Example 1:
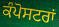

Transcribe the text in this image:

ਕੰਪੋਸਟਰਾਂ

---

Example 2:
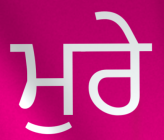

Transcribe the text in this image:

ਮੁਰੇ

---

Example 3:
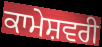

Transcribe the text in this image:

ਕਾਮੇਸ਼ਵਰੀ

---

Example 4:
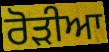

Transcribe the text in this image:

ਰੋੜੀਆ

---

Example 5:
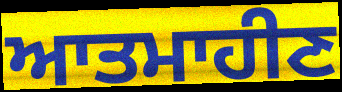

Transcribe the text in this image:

ਆਤਮਾਹੀਣ